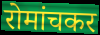
रोमांचकर